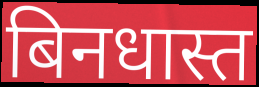
बिनधास्त